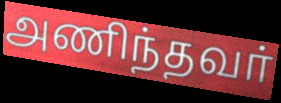
அணிந்தவர்